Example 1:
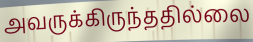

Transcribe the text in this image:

அவருக்கிருந்ததில்லை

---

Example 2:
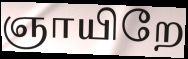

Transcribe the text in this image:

ஞாயிறே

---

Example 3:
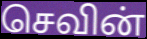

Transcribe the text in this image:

செவின்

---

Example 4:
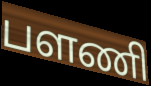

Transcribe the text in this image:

பளணி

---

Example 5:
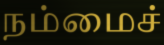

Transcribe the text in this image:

நம்மைச்